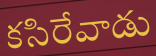
కసిరేవాడు